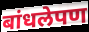
बांधलेपण